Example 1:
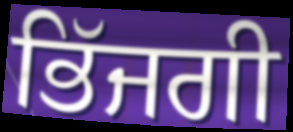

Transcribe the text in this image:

ਭਿੱਜਗੀ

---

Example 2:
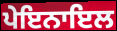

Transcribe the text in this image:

ਪੇਇਨਾਇਲ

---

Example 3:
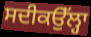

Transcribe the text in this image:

ਸਦੀਕਉੱਲ੍ਹਾ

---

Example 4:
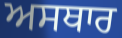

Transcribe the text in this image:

ਅਸਥਾਰ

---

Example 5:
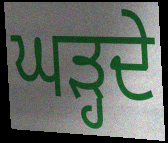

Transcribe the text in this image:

ਘੜ੍ਹਦੇ